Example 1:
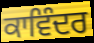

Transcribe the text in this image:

ਕਾਵਿੰਦਰ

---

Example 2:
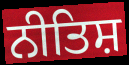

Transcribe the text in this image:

ਨੀਤਿਸ਼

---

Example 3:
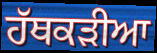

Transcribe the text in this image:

ਹੱਥਕੜੀਆ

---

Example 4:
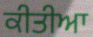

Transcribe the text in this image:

ਕੀਤੀਆ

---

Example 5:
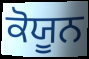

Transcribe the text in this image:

ਕੋਯੂਨ